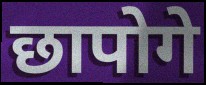
छापोगे